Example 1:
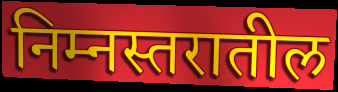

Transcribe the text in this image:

निम्नस्तरातील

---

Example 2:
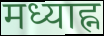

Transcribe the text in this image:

मध्याह्न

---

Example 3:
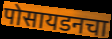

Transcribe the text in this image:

पोसायडनचा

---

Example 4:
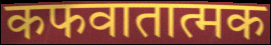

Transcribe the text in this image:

कफवातात्मक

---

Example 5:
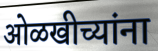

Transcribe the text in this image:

ओळखीच्यांना